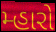
મ્હારો